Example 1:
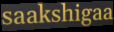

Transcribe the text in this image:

saakshigaa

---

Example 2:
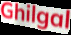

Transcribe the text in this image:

Ghilgal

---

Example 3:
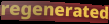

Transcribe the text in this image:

regenerated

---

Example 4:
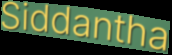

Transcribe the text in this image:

Siddantha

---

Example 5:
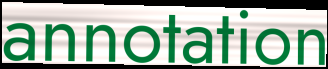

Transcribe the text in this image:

annotation